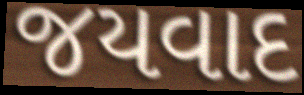
જયવાદ